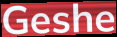
Geshe